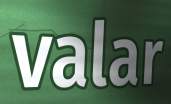
valar